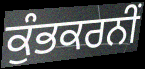
ਕੁੰਭਕਰਨੀਂ